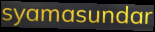
syamasundar